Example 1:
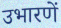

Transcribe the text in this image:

उभारणें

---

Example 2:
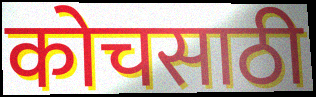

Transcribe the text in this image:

कोचसाठी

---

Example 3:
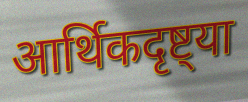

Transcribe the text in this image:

आर्थिकदृष्ट्या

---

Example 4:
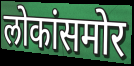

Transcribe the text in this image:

लोकांसमोर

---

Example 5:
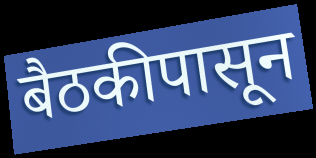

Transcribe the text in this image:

बैठकीपासून